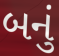
બનું